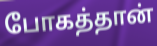
போகத்தான்